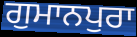
ਗੁਮਾਨਪੁਰਾ